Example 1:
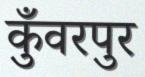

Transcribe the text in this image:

कुँवरपुर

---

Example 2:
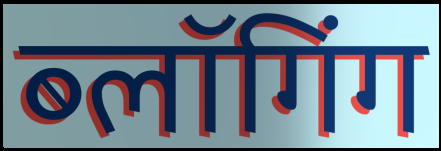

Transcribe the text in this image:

ब्‍लॉगिंग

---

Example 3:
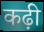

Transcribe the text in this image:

कढ़ी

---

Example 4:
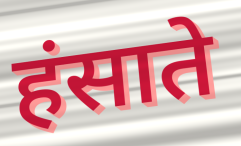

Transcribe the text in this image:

हंसाते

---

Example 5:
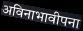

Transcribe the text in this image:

अविनाभावीपना